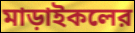
মাড়াইকলের